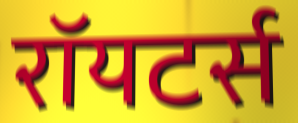
रॉयटर्स